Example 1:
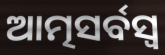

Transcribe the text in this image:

ଆତ୍ମସର୍ବସ୍ଵ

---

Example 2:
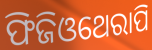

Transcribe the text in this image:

ଫିଜିଓଥେରାପି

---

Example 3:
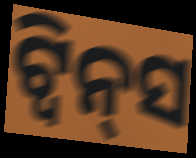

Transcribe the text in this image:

ଟ୍ବିନ୍‌ସ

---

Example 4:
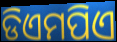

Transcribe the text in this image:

ଡିଏମପିଏ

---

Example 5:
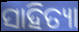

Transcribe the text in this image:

ସାହିତ୍ୟା